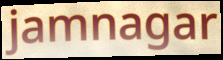
jamnagar